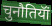
चुनौतियॉं